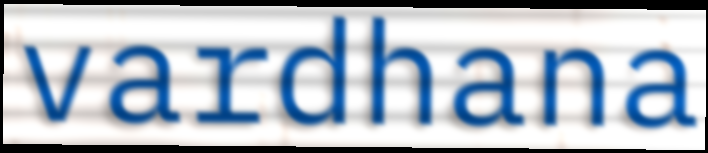
vardhana